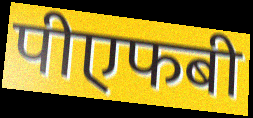
पीएफबी